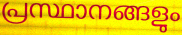
പ്രസ്ഥാനങ്ങളും